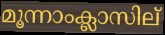
മൂന്നാംക്ലാസില്